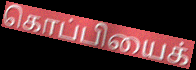
கொப்பியைக்